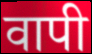
वापी